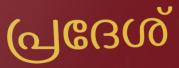
പ്രദേശ്